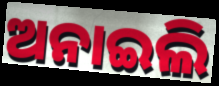
ଅନାଇଲି